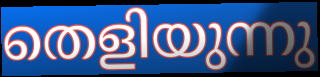
തെളിയുന്നു